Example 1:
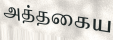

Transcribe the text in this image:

அத்தகைய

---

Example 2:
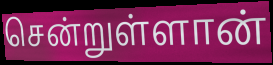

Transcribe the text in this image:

சென்றுள்ளான்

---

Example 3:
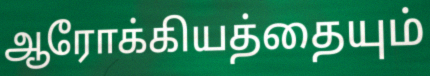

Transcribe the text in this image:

ஆரோக்கியத்தையும்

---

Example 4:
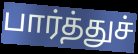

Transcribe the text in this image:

பார்த்துச்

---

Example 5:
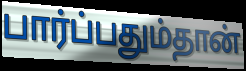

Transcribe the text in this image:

பார்ப்பதும்தான்